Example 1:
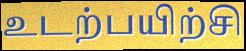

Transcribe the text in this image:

உடற்பயிற்சி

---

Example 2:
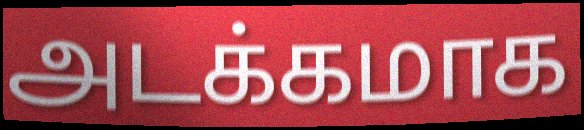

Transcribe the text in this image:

அடக்கமாக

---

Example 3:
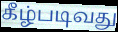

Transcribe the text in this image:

கீழ்படிவது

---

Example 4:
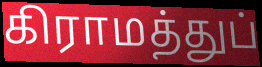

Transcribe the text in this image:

கிராமத்துப்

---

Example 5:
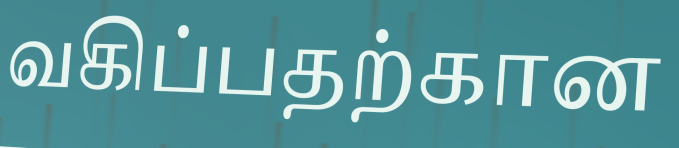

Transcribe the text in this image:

வகிப்பதற்கான